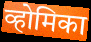
व्होमिका